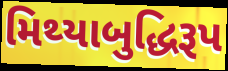
મિથ્યાબુદ્ધિરૂપ